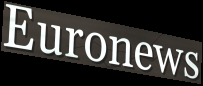
Euronews